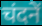
चंदनें